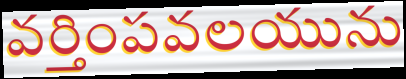
వర్తింపవలయును